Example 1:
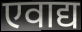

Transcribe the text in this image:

एवाद्य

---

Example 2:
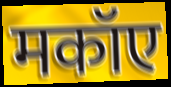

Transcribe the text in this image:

मकॉए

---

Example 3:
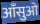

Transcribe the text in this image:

आँसुओ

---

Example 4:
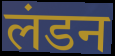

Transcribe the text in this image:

लंडन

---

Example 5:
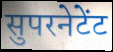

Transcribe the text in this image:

सुपरनेटेंट